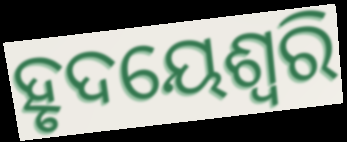
ହୃଦୟେଶ୍ଵରି